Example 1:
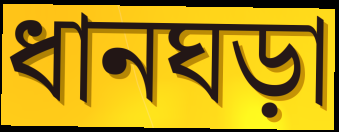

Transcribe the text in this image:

ধানঘড়া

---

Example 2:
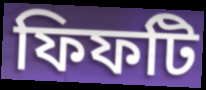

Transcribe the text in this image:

ফিফটি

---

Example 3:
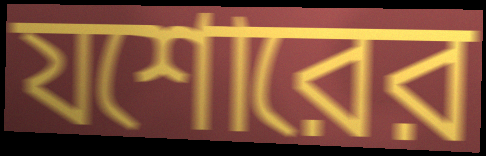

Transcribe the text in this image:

যশোরের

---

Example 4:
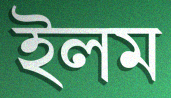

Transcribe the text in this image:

ইলম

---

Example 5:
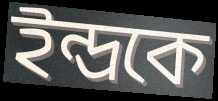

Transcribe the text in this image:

ইন্দ্রকে